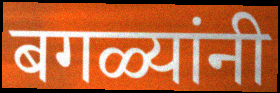
बगळ्यांनी